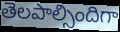
తెలపాల్సిందిగా